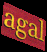
agal